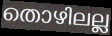
തൊഴിലല്ല